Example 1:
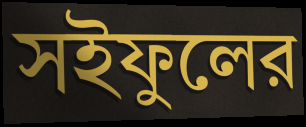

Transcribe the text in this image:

সইফুলের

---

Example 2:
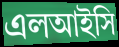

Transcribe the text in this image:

এলআইসি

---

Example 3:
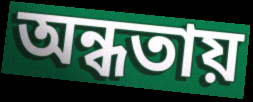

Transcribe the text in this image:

অন্ধতায়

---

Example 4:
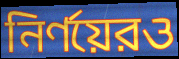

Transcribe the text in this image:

নির্ণয়েরও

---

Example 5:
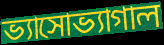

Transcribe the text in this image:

ভ্যাসোভ্যাগাল